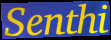
Senthi